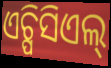
ଏଚ୍ପିସିଏଲ୍